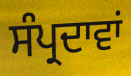
ਸੰਪ੍ਰਦਾਵਾਂ